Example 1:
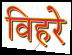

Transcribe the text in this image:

विहरे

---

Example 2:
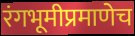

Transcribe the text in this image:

रंगभूमीप्रमाणेच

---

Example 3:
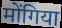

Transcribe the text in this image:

मोंगिया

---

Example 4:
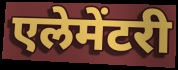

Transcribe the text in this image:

एलेमेंटरी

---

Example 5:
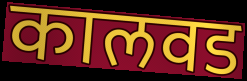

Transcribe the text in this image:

कालवड